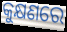
କୁକ୍ଷଣରେ